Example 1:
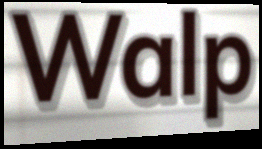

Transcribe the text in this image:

Walp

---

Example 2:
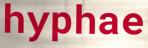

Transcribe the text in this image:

hyphae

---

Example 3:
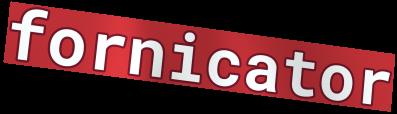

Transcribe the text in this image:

fornicator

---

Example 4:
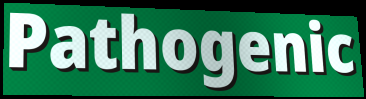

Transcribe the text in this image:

Pathogenic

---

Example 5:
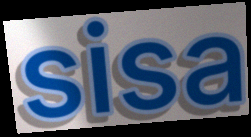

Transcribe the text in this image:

sisa